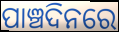
ପାଞ୍ଚଦିନରେ